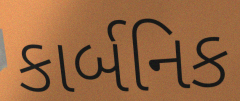
કાર્બનિક